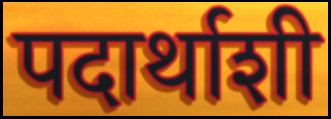
पदार्थाशी